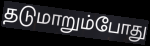
தடுமாறும்போது